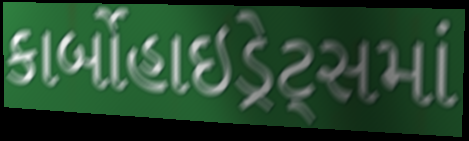
કાર્બોહાઇડ્રેટ્સમાં